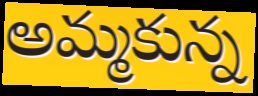
అమ్మకున్న